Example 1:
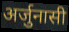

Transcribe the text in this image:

अर्जुनासी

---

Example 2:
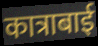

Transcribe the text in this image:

कात्राबाई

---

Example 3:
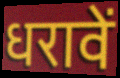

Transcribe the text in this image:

धरावें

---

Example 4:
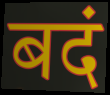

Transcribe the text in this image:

बदं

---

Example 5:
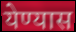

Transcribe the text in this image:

येण्यास